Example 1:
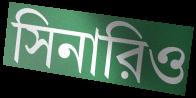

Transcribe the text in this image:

সিনারিও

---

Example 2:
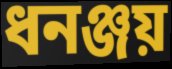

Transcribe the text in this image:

ধনঞ্জয়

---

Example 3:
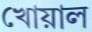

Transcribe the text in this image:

খোয়াল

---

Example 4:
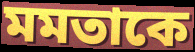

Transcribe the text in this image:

মমতাকে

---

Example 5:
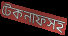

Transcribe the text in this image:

টেকনাফসহ